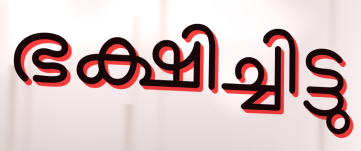
ഭക്ഷിച്ചിട്ടു